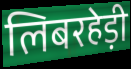
लिबरहेड़ी